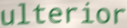
ulterior